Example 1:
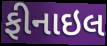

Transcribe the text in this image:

ફીનાઇલ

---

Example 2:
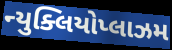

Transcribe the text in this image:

ન્યુક્લિયોપ્લાઝમ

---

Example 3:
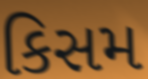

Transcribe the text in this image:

કિસમ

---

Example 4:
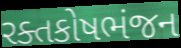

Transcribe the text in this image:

રક્તકોષભંજન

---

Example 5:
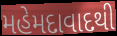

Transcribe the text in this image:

મહેમદાવાદથી